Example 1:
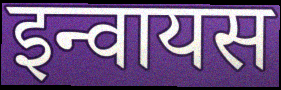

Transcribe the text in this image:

इन्वायस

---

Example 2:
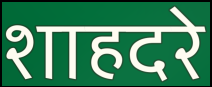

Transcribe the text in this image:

शाहदरे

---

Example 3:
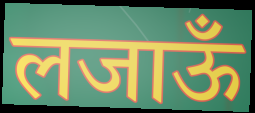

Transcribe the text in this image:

लजाऊँ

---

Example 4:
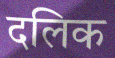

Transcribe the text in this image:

दलिक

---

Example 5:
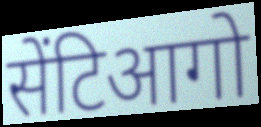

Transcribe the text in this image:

सेंटिआगो